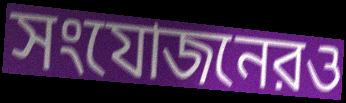
সংযোজনেরও